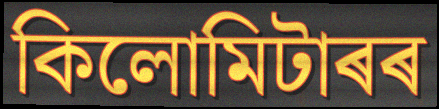
কিলোমিটাৰৰ